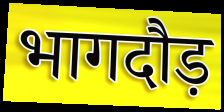
भागदौड़